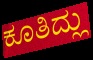
ಕೂತಿದ್ಲು